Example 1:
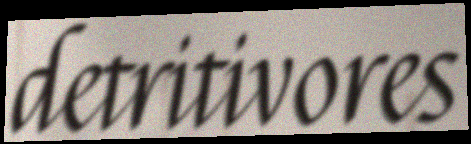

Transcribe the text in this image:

detritivores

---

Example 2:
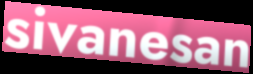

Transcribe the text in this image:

sivanesan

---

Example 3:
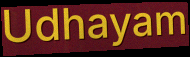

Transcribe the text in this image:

Udhayam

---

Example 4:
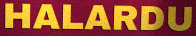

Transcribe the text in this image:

HALARDU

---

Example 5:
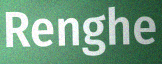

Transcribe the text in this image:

Renghe